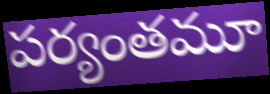
పర్యంతమూ